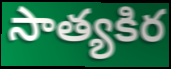
సాత్యకిర